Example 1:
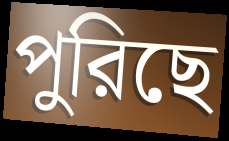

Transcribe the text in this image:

পুরিছে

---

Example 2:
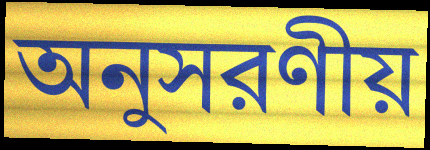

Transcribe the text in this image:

অনুসরণীয়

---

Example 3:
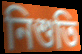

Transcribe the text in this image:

নিশুতি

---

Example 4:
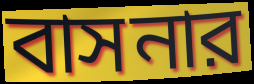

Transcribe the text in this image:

বাসনার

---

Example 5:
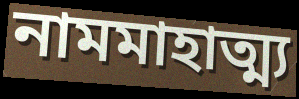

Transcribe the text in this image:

নামমাহাত্ম্য